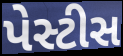
પેસ્ટીસ